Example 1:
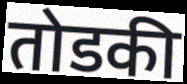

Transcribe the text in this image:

तोडकी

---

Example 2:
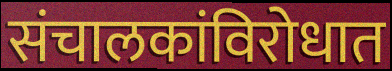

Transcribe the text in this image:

संचालकांविरोधात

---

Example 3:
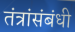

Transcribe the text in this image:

तंत्रांसंबंधी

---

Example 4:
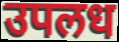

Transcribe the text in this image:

उपलध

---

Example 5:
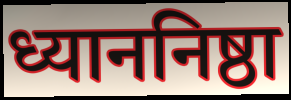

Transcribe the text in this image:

ध्याननिष्ठा